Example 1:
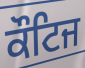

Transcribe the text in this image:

ਕੌਟਿਜ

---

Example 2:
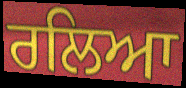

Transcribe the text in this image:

ਰਲਿਆ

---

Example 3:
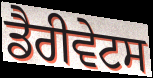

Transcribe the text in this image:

ਡੈਰੀਵੇਟਸ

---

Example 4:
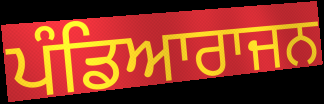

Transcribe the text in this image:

ਪੰਡਿਆਰਾਜਨ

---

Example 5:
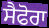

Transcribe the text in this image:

ਸੈਫੋਰਾ